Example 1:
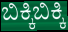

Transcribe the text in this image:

ಬಿಕ್ಕಿಬಿಕ್ಕಿ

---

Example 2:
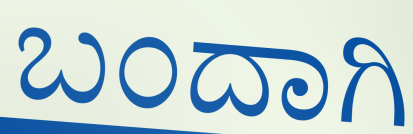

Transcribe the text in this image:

ಬಂದಾಗಿ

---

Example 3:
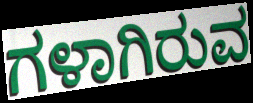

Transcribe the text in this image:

ಗಳಾಗಿರುವ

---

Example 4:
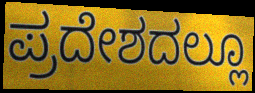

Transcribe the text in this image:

ಪ್ರದೇಶದಲ್ಲೂ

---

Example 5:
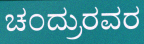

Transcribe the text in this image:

ಚಂದ್ರುರವರ